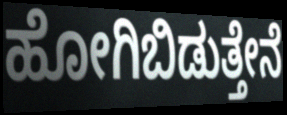
ಹೋಗಿಬಿಡುತ್ತೇನೆ